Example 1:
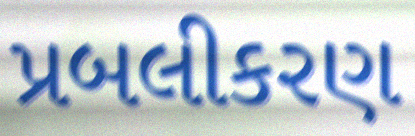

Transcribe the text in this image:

પ્રબલીકરણ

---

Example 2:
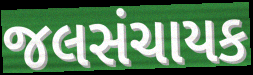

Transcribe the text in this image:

જલસંચાયક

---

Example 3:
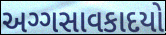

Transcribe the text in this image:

અગ્ગસાવકાદયો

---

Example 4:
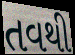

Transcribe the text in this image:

તવથી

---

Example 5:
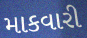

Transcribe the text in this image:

માકવારી